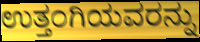
ಉತ್ತಂಗಿಯವರನ್ನು